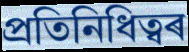
প্ৰতিনিধিত্বৰ